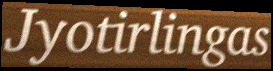
Jyotirlingas